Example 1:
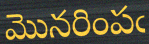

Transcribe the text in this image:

మొనరింపఁ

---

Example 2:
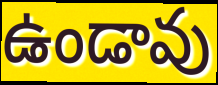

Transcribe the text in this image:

ఉండావు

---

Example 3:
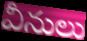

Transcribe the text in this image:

వీనులు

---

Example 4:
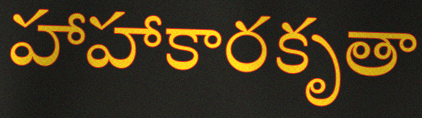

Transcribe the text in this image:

హాహాకారకృతా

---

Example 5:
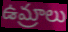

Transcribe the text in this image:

ఉమ్రాలు